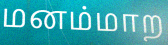
மனம்மாற